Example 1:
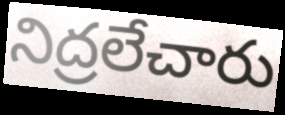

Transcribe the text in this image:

నిద్రలేచారు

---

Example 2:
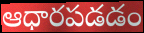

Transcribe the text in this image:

ఆధారపడడం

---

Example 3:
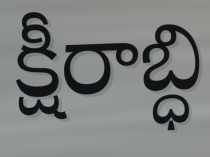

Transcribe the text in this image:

క్షీరాబ్ధి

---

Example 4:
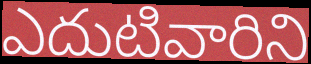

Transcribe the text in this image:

ఎదుటివారిని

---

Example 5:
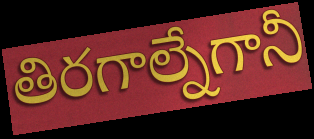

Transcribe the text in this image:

తిరగాల్నేగానీ